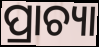
ପ୍ରାଚ୍ୟା